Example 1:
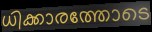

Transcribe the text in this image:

ധിക്കാരത്തോടെ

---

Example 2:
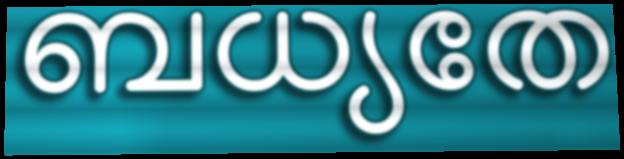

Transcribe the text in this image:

ബധ്യതേ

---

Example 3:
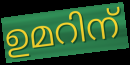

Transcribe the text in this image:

ഉമറിന്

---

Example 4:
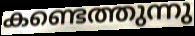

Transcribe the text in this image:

കണ്ടെത്തുന്നു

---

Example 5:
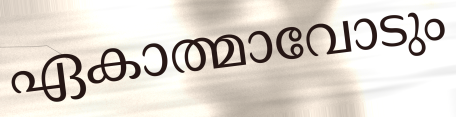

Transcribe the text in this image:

ഏകാത്മാവോടും